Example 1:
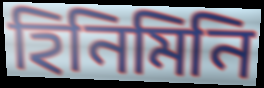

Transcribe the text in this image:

হিনিমিনি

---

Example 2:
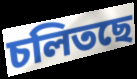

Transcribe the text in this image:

চলিতছে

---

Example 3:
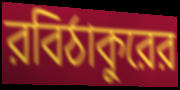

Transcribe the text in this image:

রবিঠাকুরের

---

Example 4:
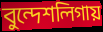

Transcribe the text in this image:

বুন্দেশলিগায়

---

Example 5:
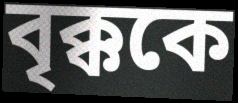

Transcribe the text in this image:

বৃক্ককে